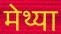
मेथ्या